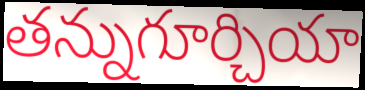
తన్నుగూర్చియా